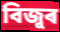
বিজুৰ